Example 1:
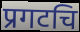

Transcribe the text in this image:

प्रगटचि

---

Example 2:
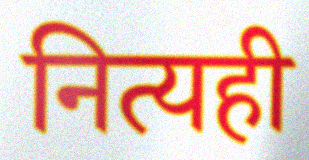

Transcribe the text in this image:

नित्यही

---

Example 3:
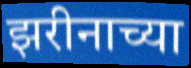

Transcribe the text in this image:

झरीनाच्या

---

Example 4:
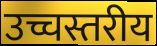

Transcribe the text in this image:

उच्चस्तरीय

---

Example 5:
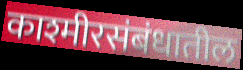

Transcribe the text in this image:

काश्मीरसंबंधातील